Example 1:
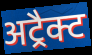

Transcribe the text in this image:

अट्रैक्ट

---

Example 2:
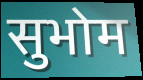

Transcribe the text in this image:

सुभोम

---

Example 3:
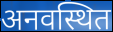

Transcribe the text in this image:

अनवस्थित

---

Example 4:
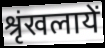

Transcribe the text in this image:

श्रृंखलायें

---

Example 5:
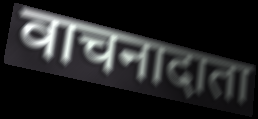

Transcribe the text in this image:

वाचनादाता